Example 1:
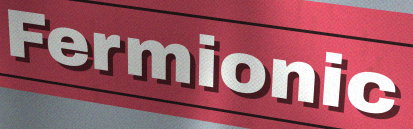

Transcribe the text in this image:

Fermionic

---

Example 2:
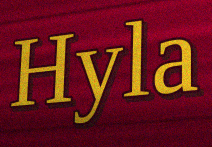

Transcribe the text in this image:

Hyla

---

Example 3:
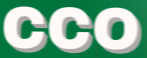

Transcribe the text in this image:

CCO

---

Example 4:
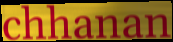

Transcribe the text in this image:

chhanan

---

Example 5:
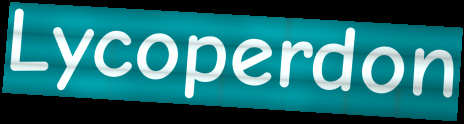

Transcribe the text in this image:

Lycoperdon